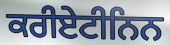
ਕਰੀਏਟੀਨਿਨ